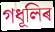
গধূলিৰ